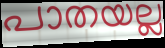
പാതയല്ല